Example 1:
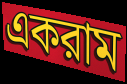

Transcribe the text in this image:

একরাম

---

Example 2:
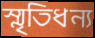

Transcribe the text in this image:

স্মৃতিধন্য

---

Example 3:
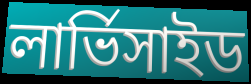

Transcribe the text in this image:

লার্ভিসাইড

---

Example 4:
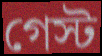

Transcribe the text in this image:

গেস্ট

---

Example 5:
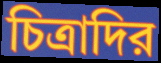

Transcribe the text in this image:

চিত্রাদির